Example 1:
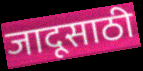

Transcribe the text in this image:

जादूसाठी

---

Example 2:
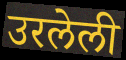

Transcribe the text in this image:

उरलेली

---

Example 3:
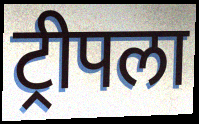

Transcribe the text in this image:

ट्रीपला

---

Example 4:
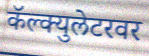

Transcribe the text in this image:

कॅल्क्युलेटरवर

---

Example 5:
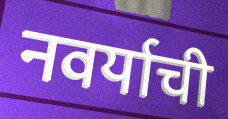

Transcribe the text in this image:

नवर्याची